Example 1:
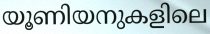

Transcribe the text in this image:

യൂണിയനുകളിലെ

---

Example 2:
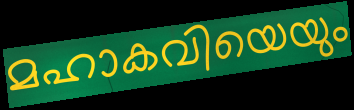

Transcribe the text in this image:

മഹാകവിയെയും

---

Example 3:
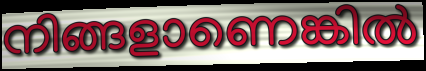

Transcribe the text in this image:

നിങ്ങളാണെങ്കിൽ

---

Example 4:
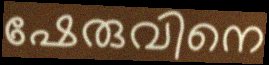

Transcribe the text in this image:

ഷേരുവിനെ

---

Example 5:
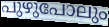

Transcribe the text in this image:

പുഴുപോലും